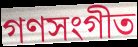
গণসংগীত